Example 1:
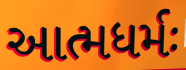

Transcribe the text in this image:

આત્મધર્મઃ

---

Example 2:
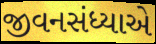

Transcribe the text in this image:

જીવનસંધ્યાએ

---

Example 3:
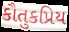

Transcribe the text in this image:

કૌતુકપ્રિય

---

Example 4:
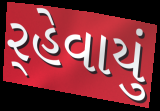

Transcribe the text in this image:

ર્‌હેવાયું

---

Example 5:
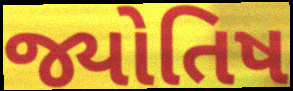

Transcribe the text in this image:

જ્યોતિષ